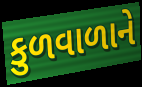
કુળવાળાને